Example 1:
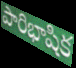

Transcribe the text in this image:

పారిభాషిక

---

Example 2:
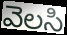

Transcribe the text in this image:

వెలసి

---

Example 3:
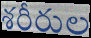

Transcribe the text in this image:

శరీరుల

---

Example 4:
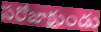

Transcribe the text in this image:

సరోజాక్షుండు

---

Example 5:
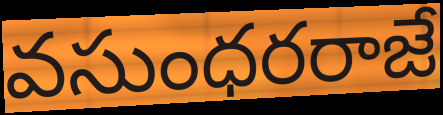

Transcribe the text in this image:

వసుంధరరాజే